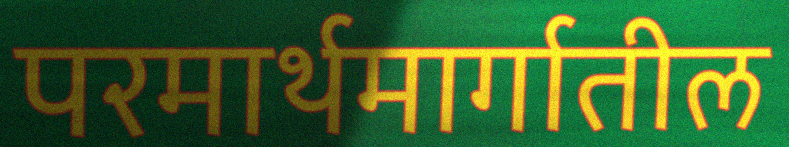
परमार्थमार्गातील